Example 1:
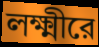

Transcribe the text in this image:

লক্ষ্মীরে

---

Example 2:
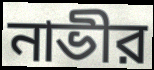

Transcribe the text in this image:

নাভীর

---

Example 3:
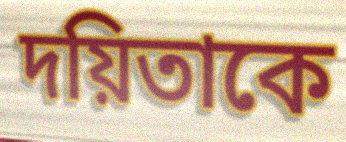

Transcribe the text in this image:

দয়িতাকে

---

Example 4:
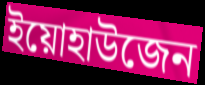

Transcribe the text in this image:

ইয়োহাউজেন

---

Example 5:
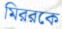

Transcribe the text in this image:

মিররকে